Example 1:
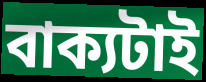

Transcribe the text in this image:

বাক্যটাই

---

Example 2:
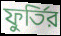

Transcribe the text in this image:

ফুর্তির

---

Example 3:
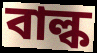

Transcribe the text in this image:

বাল্ক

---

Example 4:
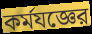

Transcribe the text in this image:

কর্মযজ্ঞের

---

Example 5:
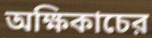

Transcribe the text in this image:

অক্ষিকাচের